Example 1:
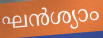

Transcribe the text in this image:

ഘൻശ്യാം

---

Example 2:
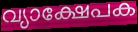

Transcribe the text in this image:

വ്യാക്ഷേപക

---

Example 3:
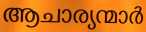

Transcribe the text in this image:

ആചാര്യന്മാർ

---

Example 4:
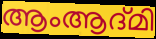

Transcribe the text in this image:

ആംആദ്മി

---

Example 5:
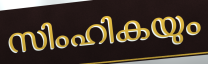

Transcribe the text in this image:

സിംഹികയും